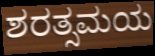
ಶರತ್ಸಮಯ